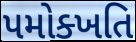
પમોક્ખતિ